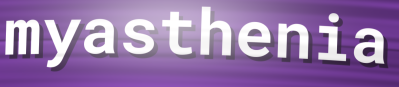
myasthenia